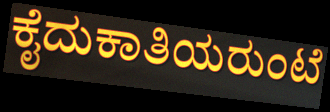
ಕೈದುಕಾತಿಯರುಂಟೆ